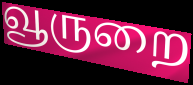
வூருறை